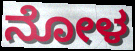
ನೋಳ